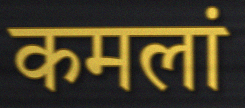
कमलां